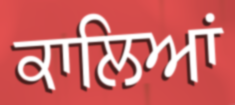
ਕਾਲਿਆਂ